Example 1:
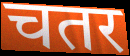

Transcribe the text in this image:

चतर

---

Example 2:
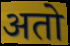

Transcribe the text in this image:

अतो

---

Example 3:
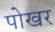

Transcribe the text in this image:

पोखर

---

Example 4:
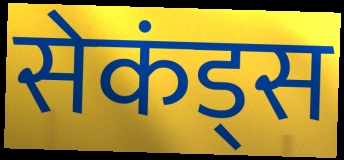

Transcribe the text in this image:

सेकंड्स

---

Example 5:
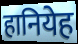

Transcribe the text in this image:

हानियेह